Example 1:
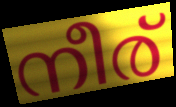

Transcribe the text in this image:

നീര്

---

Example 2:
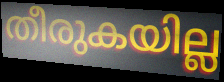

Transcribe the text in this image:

തീരുകയില്ല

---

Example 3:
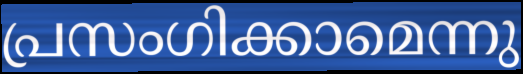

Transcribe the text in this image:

പ്രസംഗിക്കാമെന്നു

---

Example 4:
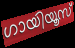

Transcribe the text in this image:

ഗായിയൂസ്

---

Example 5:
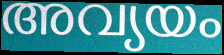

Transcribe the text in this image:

അവ്യയം